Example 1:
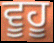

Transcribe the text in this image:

ਵੂਹੂ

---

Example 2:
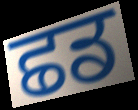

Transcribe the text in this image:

ਛਡ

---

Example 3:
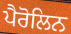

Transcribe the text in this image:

ਪੈਰੋਲਿਨ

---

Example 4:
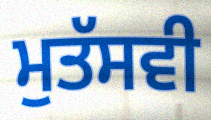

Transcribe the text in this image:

ਮੁਤੱਸਵੀ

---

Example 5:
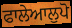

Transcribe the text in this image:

ਫਾਲੇਆਲੁਪੋ